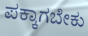
ಪಕ್ಕಾಗಬೇಕು